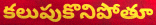
కలుపుకొనిపోతూ